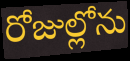
రోజుల్లోను